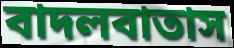
বাদলবাতাস